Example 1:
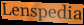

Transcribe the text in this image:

Lenspedia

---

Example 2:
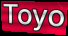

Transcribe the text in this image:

Toyo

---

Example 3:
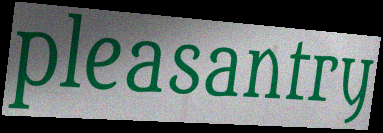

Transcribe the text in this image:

pleasantry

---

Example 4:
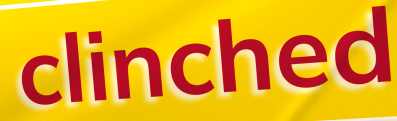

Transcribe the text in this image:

clinched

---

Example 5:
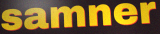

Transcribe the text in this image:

samner